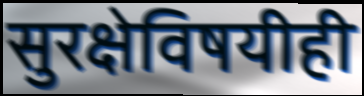
सुरक्षेविषयीही